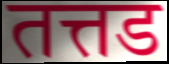
तत्तड